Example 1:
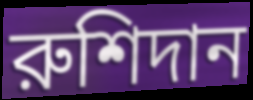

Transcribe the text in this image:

রুশিদান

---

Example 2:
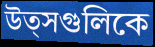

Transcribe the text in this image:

উত্সগুলিকে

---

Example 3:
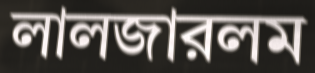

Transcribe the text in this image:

লালজারলম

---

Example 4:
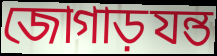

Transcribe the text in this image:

জোগাড়যন্ত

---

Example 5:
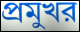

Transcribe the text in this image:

প্রমুখর